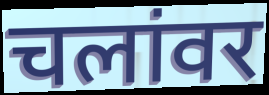
चलांवर